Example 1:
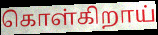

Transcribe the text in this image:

கொள்கிறாய்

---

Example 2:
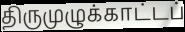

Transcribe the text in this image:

திருமுழுக்காட்டப்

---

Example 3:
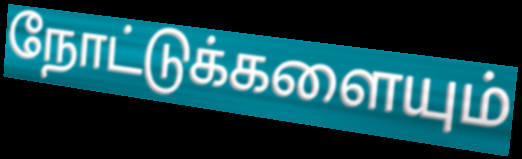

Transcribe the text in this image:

நோட்டுக்களையும்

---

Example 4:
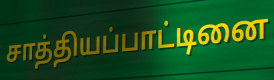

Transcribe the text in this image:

சாத்தியப்பாட்டினை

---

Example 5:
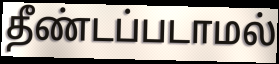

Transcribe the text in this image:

தீண்டப்படாமல்